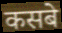
कसबे